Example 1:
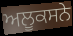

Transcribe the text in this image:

ਅਲੂਕਸਨੇ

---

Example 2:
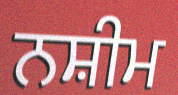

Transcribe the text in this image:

ਨਸ਼ੀਮ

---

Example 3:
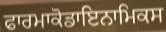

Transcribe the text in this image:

ਫਾਰਮਾਕੋਡਾਇਨਾਮਿਕਸ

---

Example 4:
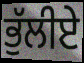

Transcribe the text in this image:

ਭੁੱਲੀਏ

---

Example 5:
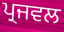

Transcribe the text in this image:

ਪ੍ਰਜਵਲ